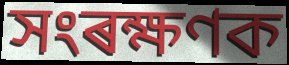
সংৰক্ষণক